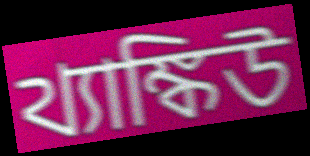
থ্যাঙ্কিউ